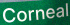
Corneal